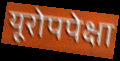
यूरोपपेक्षा